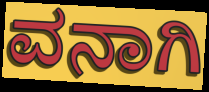
ವನಾಗಿ